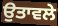
ਉਤਾਵਲੇ